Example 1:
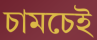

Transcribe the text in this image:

চামচেই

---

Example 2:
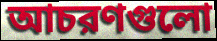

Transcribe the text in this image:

আচরণগুলো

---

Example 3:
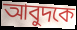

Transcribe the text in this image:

আবুদকে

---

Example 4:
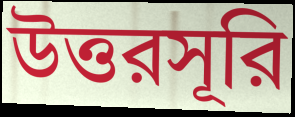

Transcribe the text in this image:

উত্তরসূরি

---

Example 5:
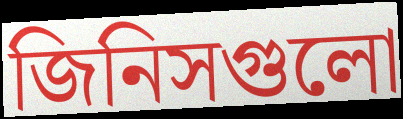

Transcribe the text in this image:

জিনিসগুলো